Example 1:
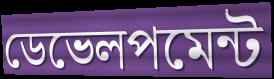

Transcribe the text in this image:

ডেভেলপমেন্ট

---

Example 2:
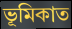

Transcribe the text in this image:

ভূমিকাত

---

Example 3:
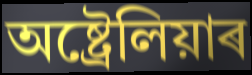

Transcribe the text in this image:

অষ্ট্ৰেলিয়াৰ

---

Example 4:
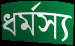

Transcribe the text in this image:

ধৰ্মস্য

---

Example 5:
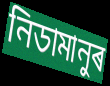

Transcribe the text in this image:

নিডামানুৰ